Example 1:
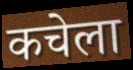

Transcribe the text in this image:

कचेला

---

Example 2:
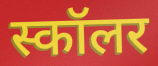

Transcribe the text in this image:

स्कॉलर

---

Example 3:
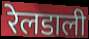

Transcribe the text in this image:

रेलडाली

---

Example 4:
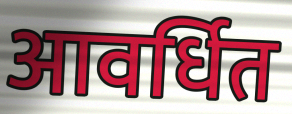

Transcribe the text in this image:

आवर्धित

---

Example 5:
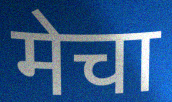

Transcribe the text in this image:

मेचा